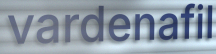
vardenafil